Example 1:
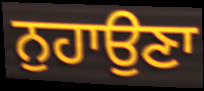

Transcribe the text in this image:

ਨੁਹਾਉਣਾ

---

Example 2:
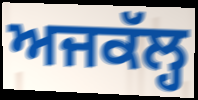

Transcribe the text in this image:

ਅਜਕੱਲ੍ਹ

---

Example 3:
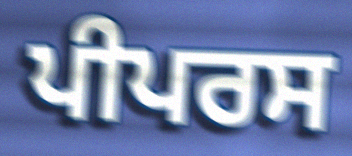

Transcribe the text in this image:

ਪੀਪਰਸ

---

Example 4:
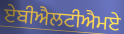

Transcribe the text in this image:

ਏਬੀਐਲਟੀਐਮਏ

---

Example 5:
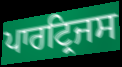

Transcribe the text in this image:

ਪਾਰਟ੍ਰਿਜਸ